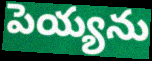
పెయ్యను